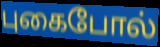
புகைபோல்